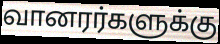
வானரர்களுக்கு